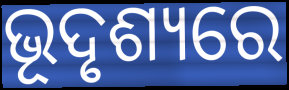
ଭୂଦୃଶ୍ୟରେ